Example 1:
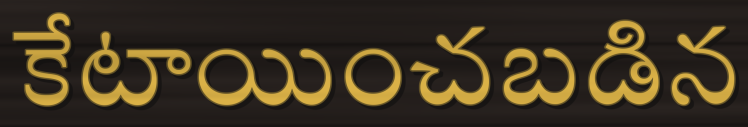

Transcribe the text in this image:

కేటాయించబడిన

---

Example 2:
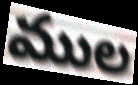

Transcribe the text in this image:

ముల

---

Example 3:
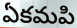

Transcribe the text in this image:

ఏకమపి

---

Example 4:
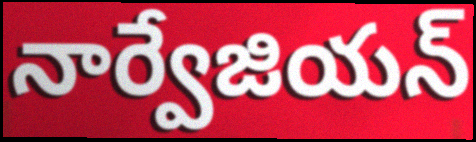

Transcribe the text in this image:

నార్వేజియన్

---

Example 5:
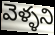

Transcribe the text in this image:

వెళ్ళని